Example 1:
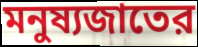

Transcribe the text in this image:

মনুষ্যজাতের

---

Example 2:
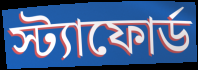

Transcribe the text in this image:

স্ট্যাফোর্ড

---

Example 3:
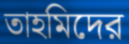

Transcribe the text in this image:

তাহমিদের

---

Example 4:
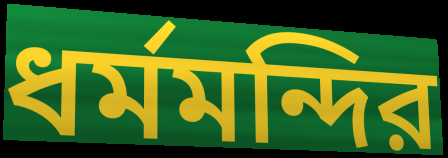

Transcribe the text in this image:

ধর্মমন্দির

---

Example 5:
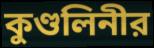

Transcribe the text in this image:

কুণ্ডলিনীর